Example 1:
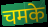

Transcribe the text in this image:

चमके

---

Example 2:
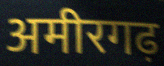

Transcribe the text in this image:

अमीरगढ़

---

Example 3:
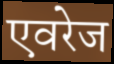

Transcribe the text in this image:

एवरेज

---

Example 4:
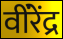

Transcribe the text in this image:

वींरेंद्र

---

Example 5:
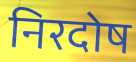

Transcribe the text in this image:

निरदोष